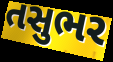
તસુભર